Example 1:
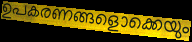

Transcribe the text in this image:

ഉപകരണങ്ങളൊക്കെയും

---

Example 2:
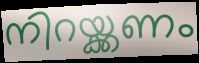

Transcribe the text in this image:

നിറയ്ക്കണം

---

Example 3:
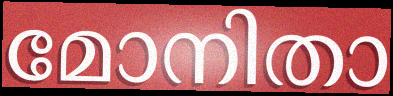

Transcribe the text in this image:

മോനിതാ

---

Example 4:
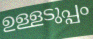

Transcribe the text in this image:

ഉള്ളടുപ്പം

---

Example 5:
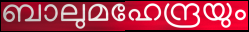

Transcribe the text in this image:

ബാലുമഹേന്ദ്രയും